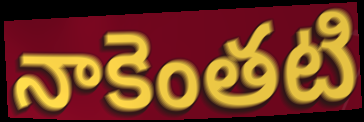
నాకెంతటి